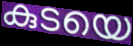
കുടയെ